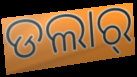
ଡଲାର୍